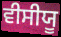
ਵੀਸੀਯੂ